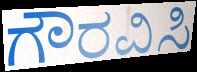
ಗೌರವಿಸಿ